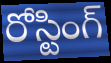
రోస్టింగ్